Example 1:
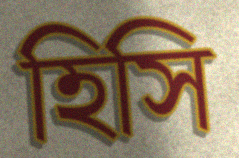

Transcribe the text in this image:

হিসি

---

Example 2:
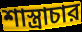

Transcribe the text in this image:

শাস্ত্রাচার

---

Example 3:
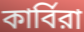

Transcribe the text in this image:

কার্বিরা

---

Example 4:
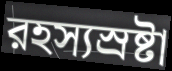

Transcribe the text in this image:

রহস্যস্রষ্টা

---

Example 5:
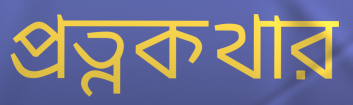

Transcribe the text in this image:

প্রত্নকথার